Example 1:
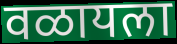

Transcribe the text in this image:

वळायला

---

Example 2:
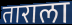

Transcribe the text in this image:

ताराला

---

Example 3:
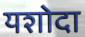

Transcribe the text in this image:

यशोदा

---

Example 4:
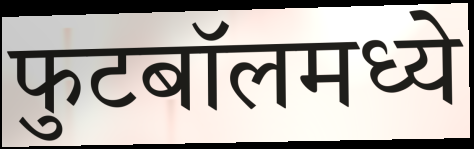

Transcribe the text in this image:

फुटबॉलमध्ये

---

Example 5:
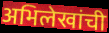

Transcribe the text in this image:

अभिलेखांची